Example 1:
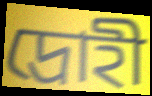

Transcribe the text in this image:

দ্ৰোহী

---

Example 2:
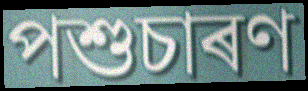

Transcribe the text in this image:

পশুচাৰণ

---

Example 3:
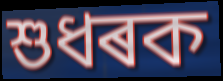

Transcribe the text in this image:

শুধৰক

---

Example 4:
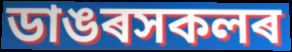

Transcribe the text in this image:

ডাঙৰসকলৰ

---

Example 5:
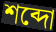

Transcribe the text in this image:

শব্দো